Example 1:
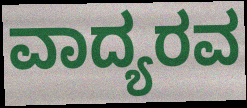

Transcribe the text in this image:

ವಾದ್ಯರವ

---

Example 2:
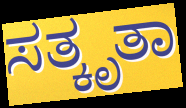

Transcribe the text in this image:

ಸತ್ಕೃತಾ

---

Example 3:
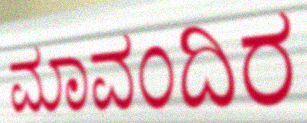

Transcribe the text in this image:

ಮಾವಂದಿರ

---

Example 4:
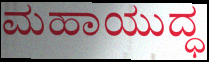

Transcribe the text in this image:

ಮಹಾಯುದ್ಧ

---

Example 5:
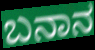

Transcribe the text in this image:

ಬನಾನ